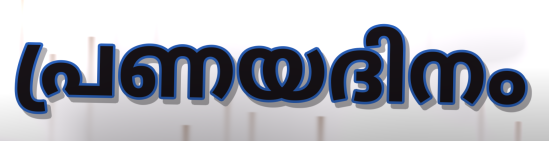
പ്രണയദിനം